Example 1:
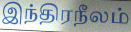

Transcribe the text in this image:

இந்திரநீலம்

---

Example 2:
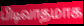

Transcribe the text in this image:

பிடிவாதமாக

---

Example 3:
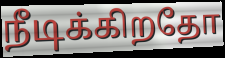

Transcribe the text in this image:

நீடிக்கிறதோ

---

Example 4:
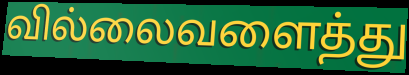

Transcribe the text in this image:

வில்லைவளைத்து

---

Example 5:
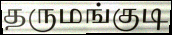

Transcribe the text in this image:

தருமங்குடி